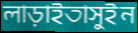
লাড়াইতাসুইন